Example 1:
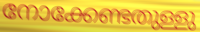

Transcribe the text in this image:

നോക്കേണ്ടതുള്ളു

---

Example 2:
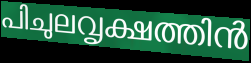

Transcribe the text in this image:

പിചുലവൃക്ഷത്തിൻ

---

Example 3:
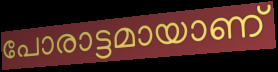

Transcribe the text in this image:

പോരാട്ടമായാണ്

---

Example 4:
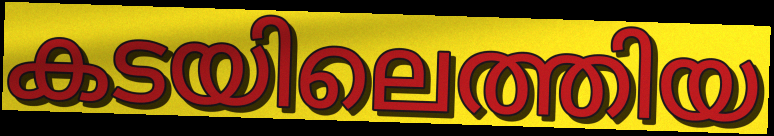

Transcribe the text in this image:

കടയിലെത്തിയ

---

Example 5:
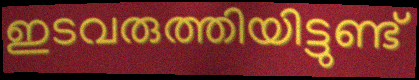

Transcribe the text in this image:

ഇടവരുത്തിയിട്ടുണ്ട്